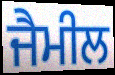
ਜੈਮੀਲ